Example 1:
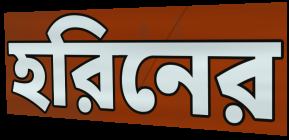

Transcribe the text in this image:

হরিনের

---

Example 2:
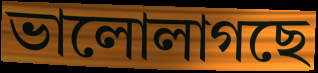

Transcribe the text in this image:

ভালোলাগছে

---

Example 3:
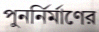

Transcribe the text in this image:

পুনর্নির্মাণের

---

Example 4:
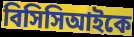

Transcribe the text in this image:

বিসিসিআইকে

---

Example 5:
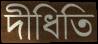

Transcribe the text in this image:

দীধিতি